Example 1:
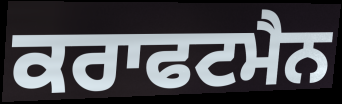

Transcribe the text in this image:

ਕਰਾਫਟਮੈਨ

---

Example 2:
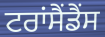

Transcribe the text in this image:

ਟਰਾਂਸੈਂਡੈਂਸ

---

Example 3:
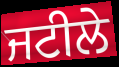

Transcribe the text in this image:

ਜਟੀਲੇ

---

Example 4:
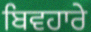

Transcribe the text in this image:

ਬਿਵਹਾਰੇ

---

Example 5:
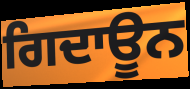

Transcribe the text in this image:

ਗਿਦਾਊਨ